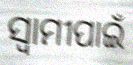
ସ୍ୱାମୀପାଇଁ